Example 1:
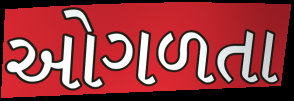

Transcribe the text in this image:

ઓગળતા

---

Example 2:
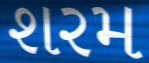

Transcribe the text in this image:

શરમ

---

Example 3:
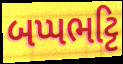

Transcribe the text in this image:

બપ્પભટ્ટિ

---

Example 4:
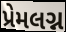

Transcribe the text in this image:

પ્રેમલગ્ન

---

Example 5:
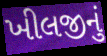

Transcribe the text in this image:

ખીલજીનું